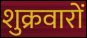
शुक्रवारों